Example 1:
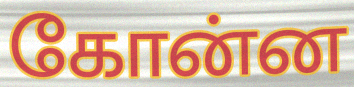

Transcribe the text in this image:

கோன்ன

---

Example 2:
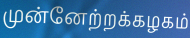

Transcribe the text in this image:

முன்னேற்றக்கழகம்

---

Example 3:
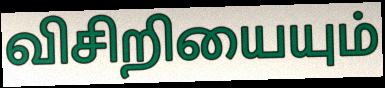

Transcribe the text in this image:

விசிறியையும்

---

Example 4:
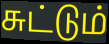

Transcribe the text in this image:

சுட்டும்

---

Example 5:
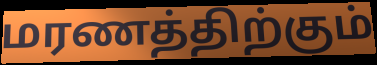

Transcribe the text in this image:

மரணத்திற்கும்